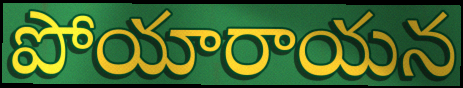
పోయారాయన